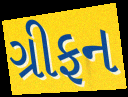
ગ્રીફન